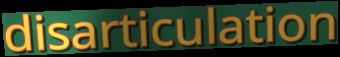
disarticulation